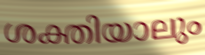
ശക്തിയാലും